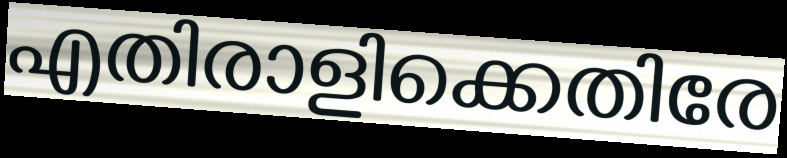
എതിരാളിക്കെതിരേ